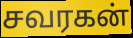
சவரகன்